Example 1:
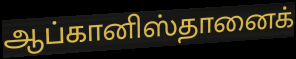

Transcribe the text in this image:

ஆப்கானிஸ்தானைக்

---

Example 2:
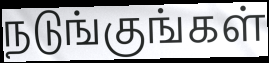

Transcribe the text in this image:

நடுங்குங்கள்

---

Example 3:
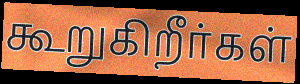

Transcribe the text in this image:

கூறுகிறீர்கள்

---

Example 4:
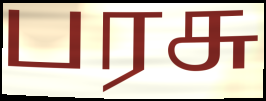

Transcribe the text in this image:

பரசு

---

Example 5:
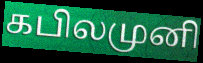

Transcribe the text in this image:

கபிலமுனி